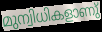
മുന്വിധികളാണു്